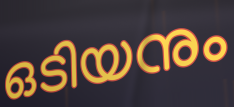
ഒടിയനും